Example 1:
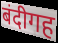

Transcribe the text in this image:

बंदीगह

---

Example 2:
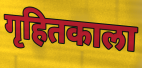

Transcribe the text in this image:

गृहितकाला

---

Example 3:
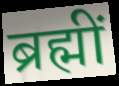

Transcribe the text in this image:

ब्रह्मीं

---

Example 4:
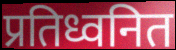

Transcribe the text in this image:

प्रतिध्वनित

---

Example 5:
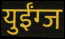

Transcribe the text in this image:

युईंग्ज